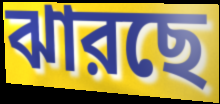
ঝারছে